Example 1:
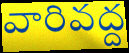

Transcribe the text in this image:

వారివద్ద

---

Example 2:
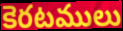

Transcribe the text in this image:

కెరటములు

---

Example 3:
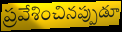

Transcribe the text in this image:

ప్రవేశించినప్పుడూ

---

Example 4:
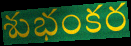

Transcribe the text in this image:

శుభంకర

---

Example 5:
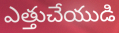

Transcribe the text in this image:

ఎత్తుచేయుడి